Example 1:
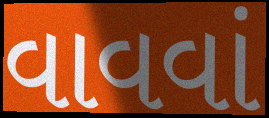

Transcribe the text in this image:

વાવવાં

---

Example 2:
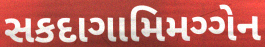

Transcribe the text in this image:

સકદાગામિમગ્ગેન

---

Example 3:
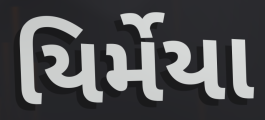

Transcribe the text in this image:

યિર્મેયા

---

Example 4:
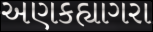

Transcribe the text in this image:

અણકહ્યાગરા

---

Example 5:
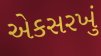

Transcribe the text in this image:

એકસરખું